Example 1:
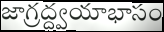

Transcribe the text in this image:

జాగ్రద్ద్వయాభాసం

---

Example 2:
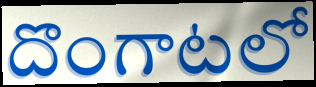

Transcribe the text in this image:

దొంగాటలో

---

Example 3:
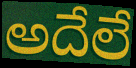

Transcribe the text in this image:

అదేలే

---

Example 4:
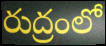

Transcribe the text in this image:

రుద్రంలో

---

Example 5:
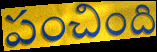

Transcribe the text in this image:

పంచింది